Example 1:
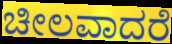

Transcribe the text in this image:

ಚೀಲವಾದರೆ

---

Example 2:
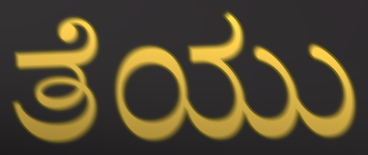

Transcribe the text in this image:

ತೆಯು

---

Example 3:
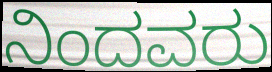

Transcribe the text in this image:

ನಿಂದವರು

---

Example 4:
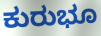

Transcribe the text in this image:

ಕುರುಭೂ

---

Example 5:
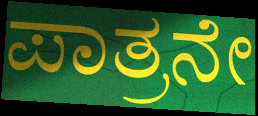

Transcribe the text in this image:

ಪಾತ್ರನೇ